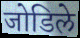
जोडिले